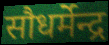
सौधर्मेन्द्र